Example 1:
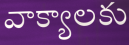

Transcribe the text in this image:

వాక్యాలకు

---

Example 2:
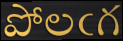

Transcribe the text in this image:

పోలఁగ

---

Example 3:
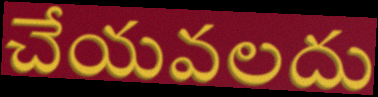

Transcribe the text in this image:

చేయవలదు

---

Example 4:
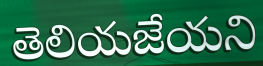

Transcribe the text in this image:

తెలియజేయని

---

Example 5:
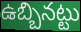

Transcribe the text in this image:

ఉబ్బినట్టు